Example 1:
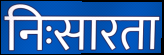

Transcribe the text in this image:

निःसारता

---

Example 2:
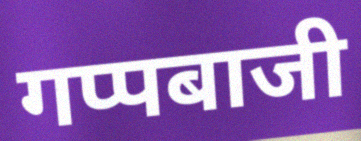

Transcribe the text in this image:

गप्पबाजी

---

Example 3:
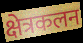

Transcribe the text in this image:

क्षेत्रकलन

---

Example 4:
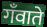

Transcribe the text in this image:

गँवाते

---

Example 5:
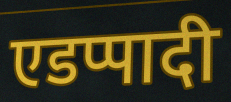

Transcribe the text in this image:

एडप्पादी